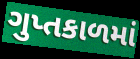
ગુપ્તકાળમાં